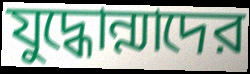
যুদ্ধোন্মাদের